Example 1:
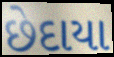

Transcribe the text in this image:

છેદાયા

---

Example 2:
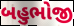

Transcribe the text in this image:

બહુભોજી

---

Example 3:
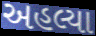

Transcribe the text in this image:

અહલ્યા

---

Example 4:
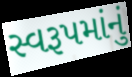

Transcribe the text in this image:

સ્વરૂપમાંનું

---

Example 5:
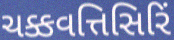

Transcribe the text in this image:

ચક્કવત્તિસિરિં